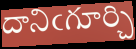
దానిఁగూర్చి